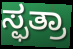
ಸ್ಫತ್ರಾ